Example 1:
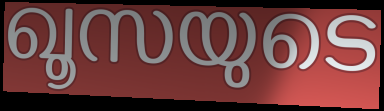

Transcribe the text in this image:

ഖൂസയുടെ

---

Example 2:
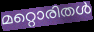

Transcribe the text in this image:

മറ്റൊരിതൾ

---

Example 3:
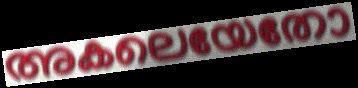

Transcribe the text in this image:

അകലെയേതോ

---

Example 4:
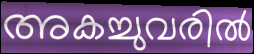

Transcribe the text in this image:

അകച്ചുവരിൽ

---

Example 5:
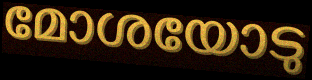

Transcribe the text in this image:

മോശയോടു